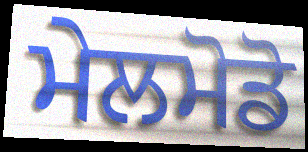
ਮੇਲਮੋਡੋ